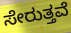
ಸೇರುತ್ತವೆ